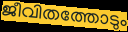
ജീവിതത്തോടും